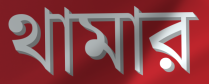
থামার